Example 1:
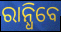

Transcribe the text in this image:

ରାନ୍ଧିବେ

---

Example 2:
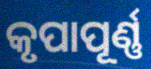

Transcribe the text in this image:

କୃପାପୂର୍ଣ୍ଣ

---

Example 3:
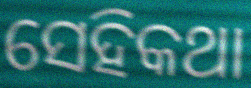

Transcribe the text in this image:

ସେହିକଥା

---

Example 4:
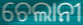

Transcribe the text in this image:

ଚେଲାନୀ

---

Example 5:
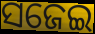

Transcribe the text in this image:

ସଜେଇ